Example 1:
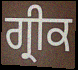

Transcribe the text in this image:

ਗ੍ਰੀਕ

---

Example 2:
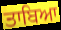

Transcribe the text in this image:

ਤਾਬਿਆ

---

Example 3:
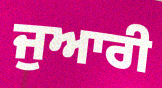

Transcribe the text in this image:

ਜੁਆਰੀ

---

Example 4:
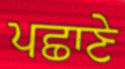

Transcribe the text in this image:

ਪਛਾਣੇ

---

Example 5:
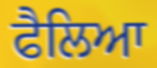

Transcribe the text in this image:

ਫੈਲਿਆ